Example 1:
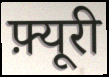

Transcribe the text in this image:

फ़्यूरी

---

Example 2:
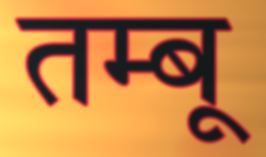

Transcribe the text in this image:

तम्‍बू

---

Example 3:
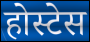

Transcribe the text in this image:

होस्टेस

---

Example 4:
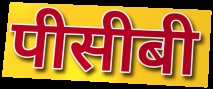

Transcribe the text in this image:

पीसीबी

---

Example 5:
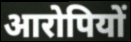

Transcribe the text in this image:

आरोपियों